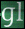
gl